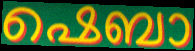
ഷെബാ